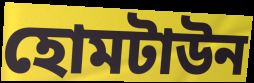
হোমটাউন